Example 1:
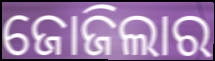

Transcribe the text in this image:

ଜୋଜିଲାର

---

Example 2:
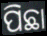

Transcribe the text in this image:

ପିଛା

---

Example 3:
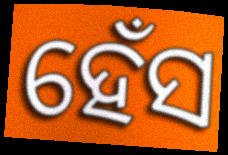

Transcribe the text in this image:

ହେଁସ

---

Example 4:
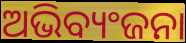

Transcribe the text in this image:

ଅଭିବ୍ୟଂଜନା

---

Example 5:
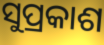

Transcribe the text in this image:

ସୁପ୍ରକାଶ